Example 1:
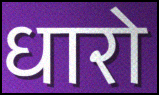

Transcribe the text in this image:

धारो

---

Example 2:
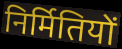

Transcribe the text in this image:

निर्मितियों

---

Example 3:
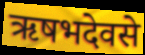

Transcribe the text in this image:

ऋषभदेवसे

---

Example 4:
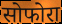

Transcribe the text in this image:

सोफोरा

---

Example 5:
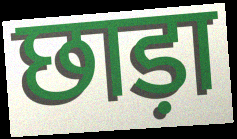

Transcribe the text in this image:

छाड़ा